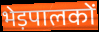
भेड़पालकों